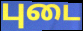
புடை